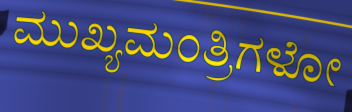
ಮುಖ್ಯಮಂತ್ರಿಗಳೋ